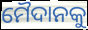
ମୈଦାନକୁ